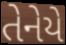
તેનેયે